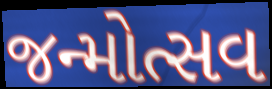
જન્મોત્સવ